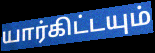
யார்கிட்டயும்